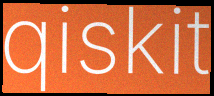
qiskit